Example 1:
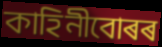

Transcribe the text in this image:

কাহিনীবোৰৰ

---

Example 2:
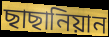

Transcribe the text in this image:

ছাছানিয়ান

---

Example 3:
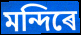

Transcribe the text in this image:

মন্দিৰে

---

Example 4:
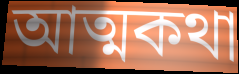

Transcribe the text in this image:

আত্মকথা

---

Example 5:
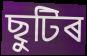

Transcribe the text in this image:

ছুটিৰ